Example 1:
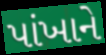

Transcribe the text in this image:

પાંખાને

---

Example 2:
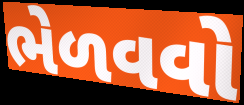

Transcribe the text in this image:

ભેળવવો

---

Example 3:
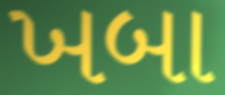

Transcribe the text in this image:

ખબા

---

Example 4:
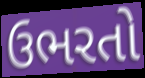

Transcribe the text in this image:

ઉભરતો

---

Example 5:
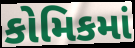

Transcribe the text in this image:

કોમિકમાં